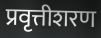
प्रवृत्तीशरण